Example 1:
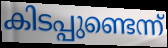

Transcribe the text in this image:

കിടപ്പുണ്ടെന്ന്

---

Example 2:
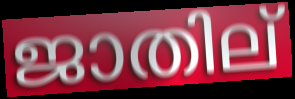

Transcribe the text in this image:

ജാതില്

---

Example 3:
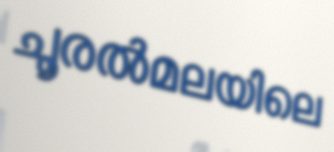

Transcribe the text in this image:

ചൂരൽമലയിലെ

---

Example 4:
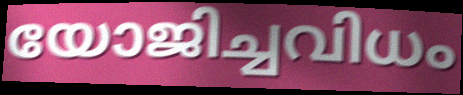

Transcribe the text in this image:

യോജിച്ചവിധം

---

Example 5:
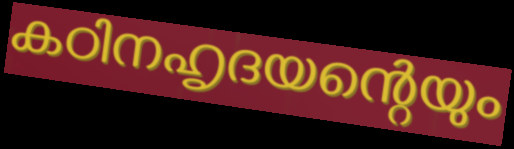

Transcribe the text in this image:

കഠിനഹൃദയന്റെയും